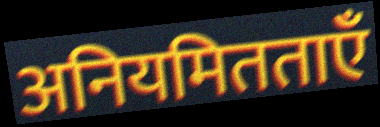
अनियमितताएँ